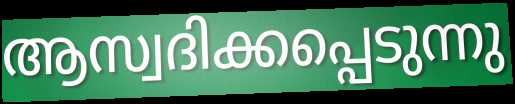
ആസ്വദിക്കപ്പെടുന്നു